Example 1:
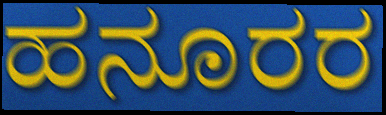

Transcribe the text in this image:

ಹನೂರರ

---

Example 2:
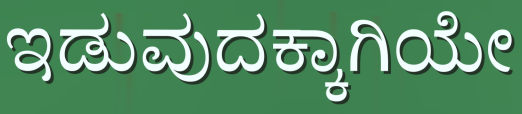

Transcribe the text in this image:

ಇಡುವುದಕ್ಕಾಗಿಯೇ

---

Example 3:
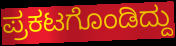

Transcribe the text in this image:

ಪ್ರಕಟಗೊಂಡಿದ್ದು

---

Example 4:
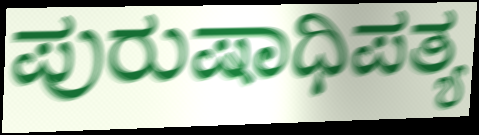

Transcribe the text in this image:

ಪುರುಷಾಧಿಪತ್ಯ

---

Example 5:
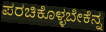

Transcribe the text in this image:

ಪರಚಿಕೊಳ್ಳಬೇಕೆನ್ನ